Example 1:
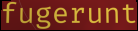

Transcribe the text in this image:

fugerunt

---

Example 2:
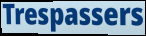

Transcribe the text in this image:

Trespassers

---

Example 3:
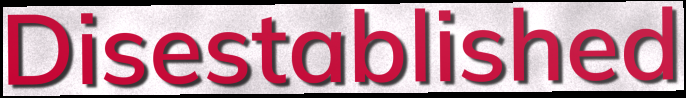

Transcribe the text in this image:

Disestablished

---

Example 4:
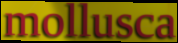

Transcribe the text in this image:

mollusca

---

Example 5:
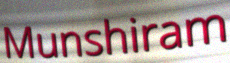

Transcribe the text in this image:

Munshiram